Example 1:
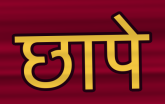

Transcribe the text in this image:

छापे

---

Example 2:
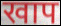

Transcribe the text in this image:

खाप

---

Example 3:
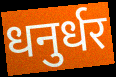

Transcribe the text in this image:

धनुर्धर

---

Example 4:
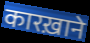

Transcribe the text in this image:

कारख़ाने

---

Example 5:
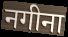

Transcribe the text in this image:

नगीना